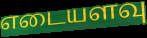
எடையளவு